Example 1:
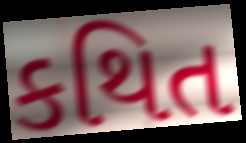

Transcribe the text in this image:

કથિત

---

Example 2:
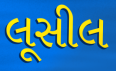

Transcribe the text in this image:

લૂસીલ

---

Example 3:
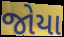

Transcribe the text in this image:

જોયા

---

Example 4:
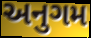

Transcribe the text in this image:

અનુગમ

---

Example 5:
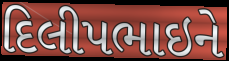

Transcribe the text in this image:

દિલીપભાઇને